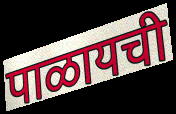
पाळायची